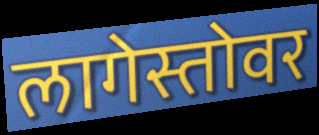
लागेस्तोवर